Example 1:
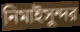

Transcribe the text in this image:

নিমাইসুন্দর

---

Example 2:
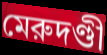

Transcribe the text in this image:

মেরুদণ্ডী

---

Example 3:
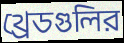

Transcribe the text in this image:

থ্রেডগুলির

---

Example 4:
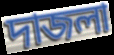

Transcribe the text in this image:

দাজলা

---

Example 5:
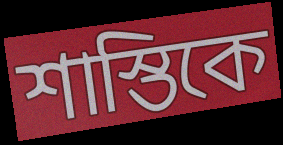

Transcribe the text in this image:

শাস্তিকে